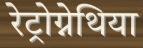
रेट्रोग्नेथिया